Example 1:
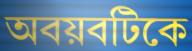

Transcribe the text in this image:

অবয়বটিকে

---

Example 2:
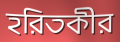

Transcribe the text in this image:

হরিতকীর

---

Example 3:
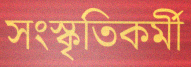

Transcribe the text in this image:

সংস্কৃতিকর্মী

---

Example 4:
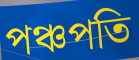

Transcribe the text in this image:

পঞ্চপতি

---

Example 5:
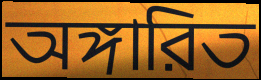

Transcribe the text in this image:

অঙ্গারিত